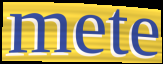
mete